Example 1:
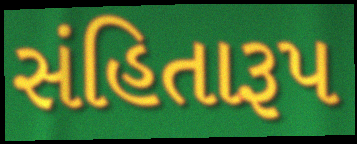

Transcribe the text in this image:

સંહિતારૂપ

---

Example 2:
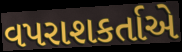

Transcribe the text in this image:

વપરાશકર્તાએ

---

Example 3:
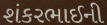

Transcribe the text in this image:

શંકરભાઈની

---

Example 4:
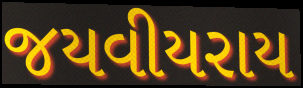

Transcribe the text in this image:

જયવીયરાય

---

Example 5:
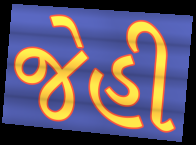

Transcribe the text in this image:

જેહી